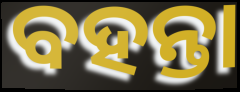
ବହନ୍ତା